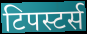
टिपस्टर्स